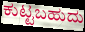
ಕುಟ್ಟಬಹುದು